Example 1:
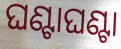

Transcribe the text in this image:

ଘଣ୍ଟାଘଣ୍ଟା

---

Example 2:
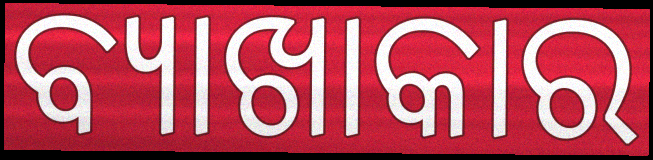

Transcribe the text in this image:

ବ୍ୟାଖାକାର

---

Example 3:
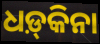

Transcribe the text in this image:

ଧଡ଼୍‍କିନା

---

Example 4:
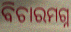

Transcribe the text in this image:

ବିଚାରମଗ୍ନ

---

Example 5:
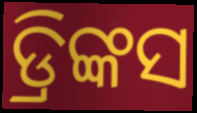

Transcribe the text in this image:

ଡ୍ରିଙ୍କସ